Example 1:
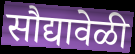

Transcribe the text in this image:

सौद्यावेळी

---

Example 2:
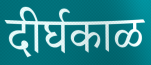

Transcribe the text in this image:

दीर्घकाळ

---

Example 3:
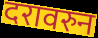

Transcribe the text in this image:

दरावरुन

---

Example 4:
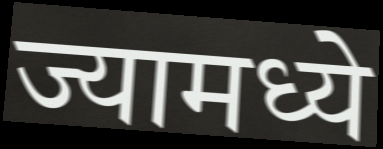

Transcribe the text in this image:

ज्यामध्ये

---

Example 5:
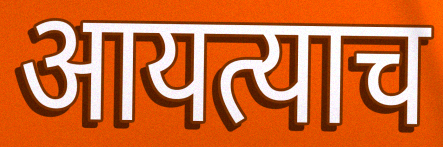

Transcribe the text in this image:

आयत्याच